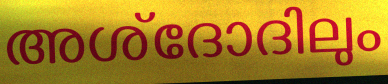
അശ്ദോദിലും